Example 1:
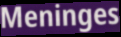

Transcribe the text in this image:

Meninges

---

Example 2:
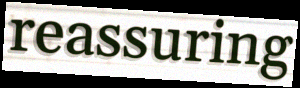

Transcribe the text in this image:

reassuring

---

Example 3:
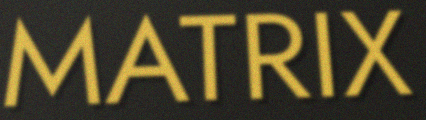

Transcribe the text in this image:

MATRIX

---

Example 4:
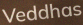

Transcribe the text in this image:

Veddhas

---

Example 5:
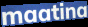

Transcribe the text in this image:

maatina